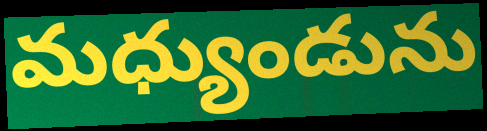
మధ్యుండును